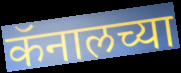
कॅनालच्या